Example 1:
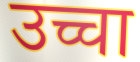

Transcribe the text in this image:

उच्चा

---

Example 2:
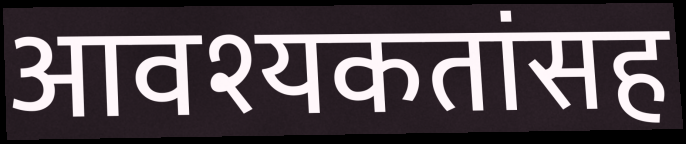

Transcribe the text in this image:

आवश्यकतांसह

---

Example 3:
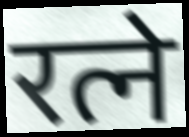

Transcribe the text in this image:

रत्ने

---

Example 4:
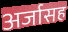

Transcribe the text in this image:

अर्जासह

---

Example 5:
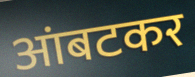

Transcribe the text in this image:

आंबटकर